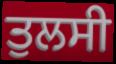
ਤੁਲਸੀ